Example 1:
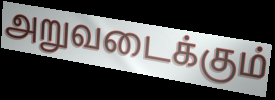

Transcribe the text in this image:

அறுவடைக்கும்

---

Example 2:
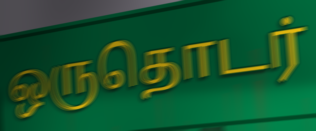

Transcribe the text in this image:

ஒருதொடர்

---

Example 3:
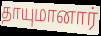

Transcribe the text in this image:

தாயுமானார்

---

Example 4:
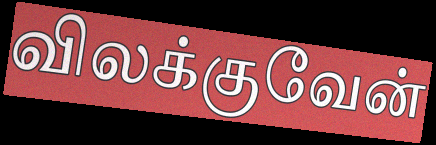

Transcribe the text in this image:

விலக்குவேன்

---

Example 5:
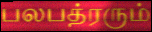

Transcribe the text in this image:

பலபத்ரரும்